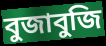
বুজাবুজি